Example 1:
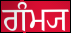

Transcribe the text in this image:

ਗੰਮ੍ਯ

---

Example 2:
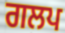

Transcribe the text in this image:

ਗਲਪ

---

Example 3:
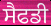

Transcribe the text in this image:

ਸੈਫਡੀ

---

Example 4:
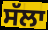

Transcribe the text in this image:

ਸੱਲਾ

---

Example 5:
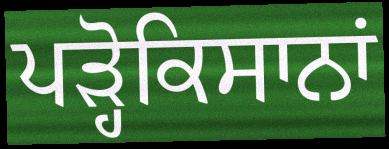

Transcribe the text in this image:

ਪੜ੍ਹੋਕਿਸਾਨਾਂ